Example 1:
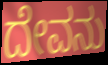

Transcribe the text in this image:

ದೇವನು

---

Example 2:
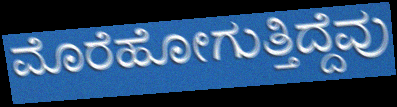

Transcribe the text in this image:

ಮೊರೆಹೋಗುತ್ತಿದ್ದೆವು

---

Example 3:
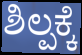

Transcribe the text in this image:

ಶಿಲ್ಪಕ್ಕೆ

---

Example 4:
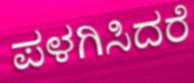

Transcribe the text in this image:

ಪಳಗಿಸಿದರೆ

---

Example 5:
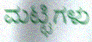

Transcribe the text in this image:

ಮಟ್ಟಿಗಳು